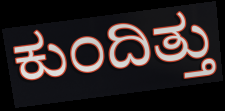
ಕುಂದಿತ್ತು